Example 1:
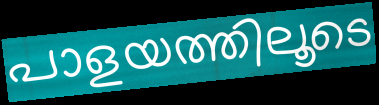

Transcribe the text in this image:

പാളയത്തിലൂടെ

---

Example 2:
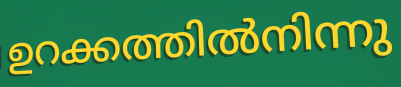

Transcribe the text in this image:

ഉറക്കത്തിൽനിന്നു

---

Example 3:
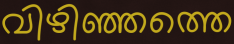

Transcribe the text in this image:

വിഴിഞ്ഞത്തെ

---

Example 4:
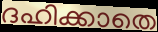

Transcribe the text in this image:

ദഹിക്കാതെ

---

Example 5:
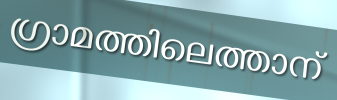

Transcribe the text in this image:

ഗ്രാമത്തിലെത്താന്